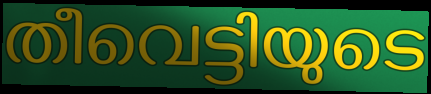
തീവെട്ടിയുടെ